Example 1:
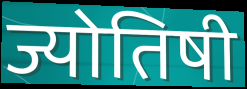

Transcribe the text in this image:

ज्योतिषी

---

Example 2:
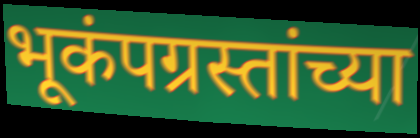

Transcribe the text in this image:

भूकंपग्रस्तांच्या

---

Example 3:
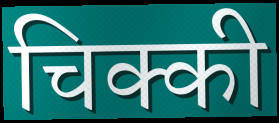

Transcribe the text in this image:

चिक्की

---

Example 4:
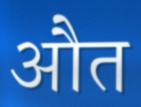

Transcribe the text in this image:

औत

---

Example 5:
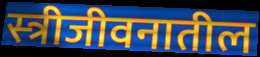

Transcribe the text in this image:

स्त्रीजीवनातील